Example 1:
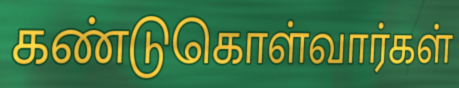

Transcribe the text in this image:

கண்டுகொள்வார்கள்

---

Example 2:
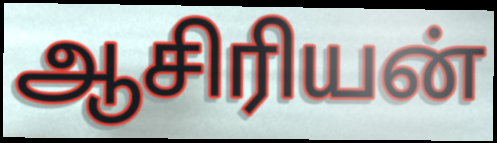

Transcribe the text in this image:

ஆசிரியன்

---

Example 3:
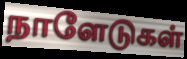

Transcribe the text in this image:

நாளேடுகள்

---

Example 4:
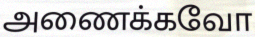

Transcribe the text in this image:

அணைக்கவோ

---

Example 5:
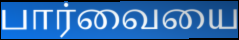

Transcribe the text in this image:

பார்வையை